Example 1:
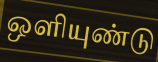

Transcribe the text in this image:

ஒளியுண்டு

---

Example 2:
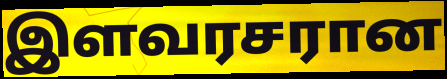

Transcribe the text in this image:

இளவரசரான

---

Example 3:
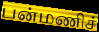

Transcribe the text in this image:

பன்மணிச்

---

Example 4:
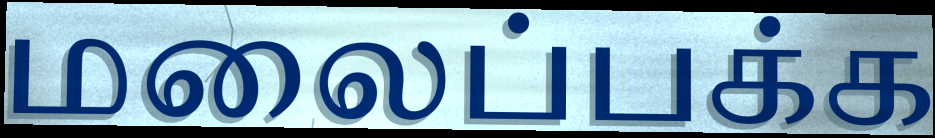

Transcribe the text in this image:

மலைப்பக்க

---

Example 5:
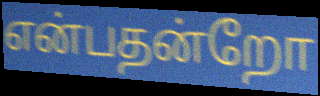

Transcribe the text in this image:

என்பதன்றோ